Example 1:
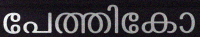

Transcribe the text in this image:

പേത്തികോ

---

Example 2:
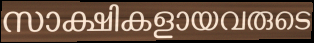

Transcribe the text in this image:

സാക്ഷികളായവരുടെ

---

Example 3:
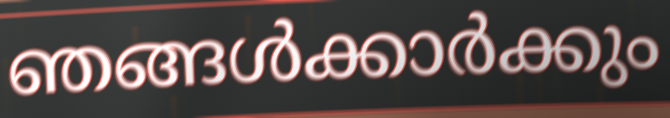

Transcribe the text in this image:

ഞങ്ങൾക്കാർക്കും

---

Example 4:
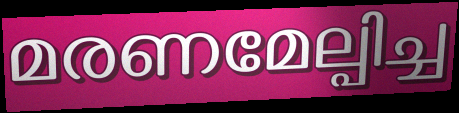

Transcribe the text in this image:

മരണമേല്പിച്ച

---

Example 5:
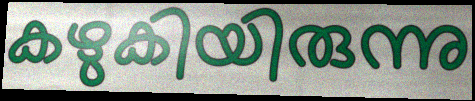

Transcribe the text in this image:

കഴുകിയിരുന്നു